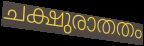
ചക്ഷുരാതതം